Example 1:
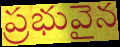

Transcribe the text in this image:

ప్రభువైన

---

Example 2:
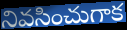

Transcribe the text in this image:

నివసించుగాక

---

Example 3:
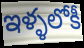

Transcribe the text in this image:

ఇళ్ళలోకీ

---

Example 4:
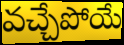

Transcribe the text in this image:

వచ్చేపోయే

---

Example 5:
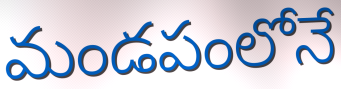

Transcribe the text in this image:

మండపంలోనే